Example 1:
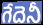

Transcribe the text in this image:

గేదెనీ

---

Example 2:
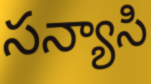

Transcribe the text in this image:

సన్యాసి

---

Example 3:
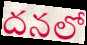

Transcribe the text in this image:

దనలో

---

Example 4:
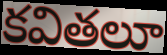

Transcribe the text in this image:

కవితలూ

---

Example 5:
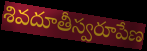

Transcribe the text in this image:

శివదూతీస్వరూపేణ